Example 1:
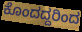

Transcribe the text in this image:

ಕೊಂದದ್ದರಿಂದ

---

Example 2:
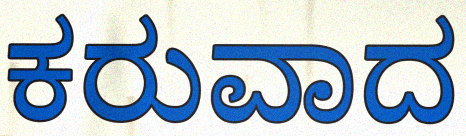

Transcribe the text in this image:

ಕರುವಾದ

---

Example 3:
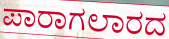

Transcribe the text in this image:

ಪಾರಾಗಲಾರದ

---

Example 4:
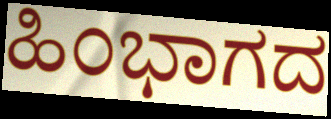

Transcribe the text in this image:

ಹಿಂಭಾಗದ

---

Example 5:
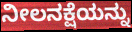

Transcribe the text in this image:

ನೀಲನಕ್ಷೆಯನ್ನು